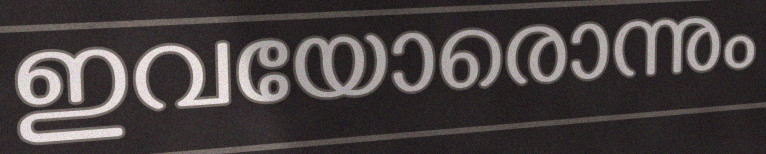
ഇവയോരൊന്നും